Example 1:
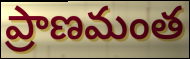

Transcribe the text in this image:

ప్రాణమంత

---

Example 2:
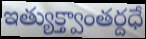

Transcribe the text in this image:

ఇత్యుక్త్వాంతర్దధే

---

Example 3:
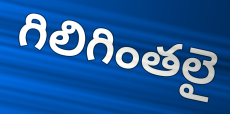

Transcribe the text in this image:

గిలిగింతలై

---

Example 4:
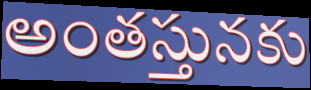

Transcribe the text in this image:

అంతస్తునకు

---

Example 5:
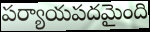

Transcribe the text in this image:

పర్యాయపదమైంది